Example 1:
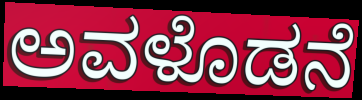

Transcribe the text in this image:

ಅವಳೊಡನೆ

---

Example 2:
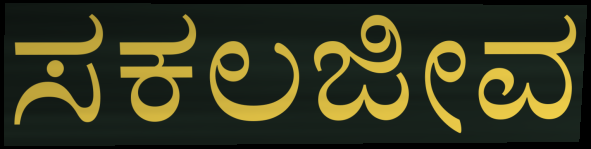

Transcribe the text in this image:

ಸಕಲಜೀವ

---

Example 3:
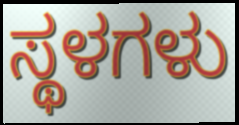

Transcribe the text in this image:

ಸ್ಥಳಗಳು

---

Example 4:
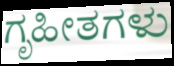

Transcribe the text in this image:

ಗೃಹೀತಗಳು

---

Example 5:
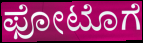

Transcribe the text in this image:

ಫೋಟೊಗೆ